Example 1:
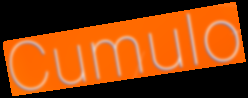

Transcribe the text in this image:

Cumulo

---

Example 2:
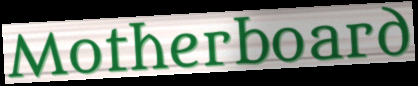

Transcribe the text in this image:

Motherboard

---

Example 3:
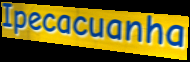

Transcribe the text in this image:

Ipecacuanha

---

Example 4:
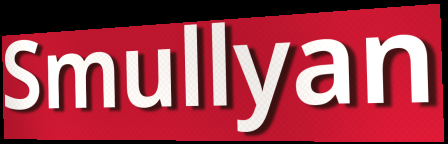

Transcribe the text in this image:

Smullyan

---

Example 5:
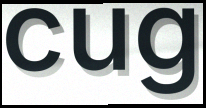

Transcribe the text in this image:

cug